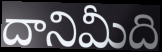
దానిమీది